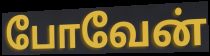
போவேன்